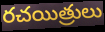
రచయిత్రులు